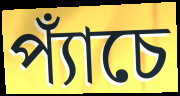
প্যাঁচে